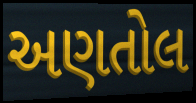
અણતોલ